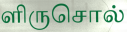
ளிருசொல்